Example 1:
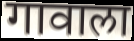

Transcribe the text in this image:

गावाला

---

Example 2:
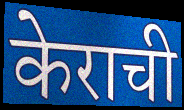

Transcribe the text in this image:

केराची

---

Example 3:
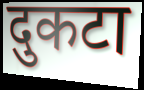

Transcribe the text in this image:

दुकटा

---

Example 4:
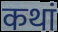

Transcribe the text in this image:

कथां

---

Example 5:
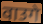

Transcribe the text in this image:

वाउगे